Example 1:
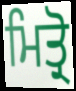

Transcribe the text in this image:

ਮਿਤ੍ਰੋ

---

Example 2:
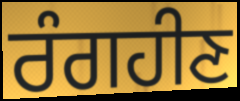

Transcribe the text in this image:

ਰੰਗਹੀਣ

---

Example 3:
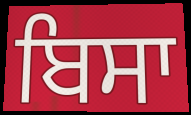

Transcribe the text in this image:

ਬਿਸਾ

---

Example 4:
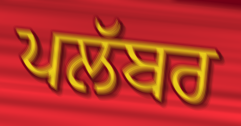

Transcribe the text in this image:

ਪਲੱਬਰ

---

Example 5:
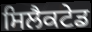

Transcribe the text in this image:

ਸਿਲੈਕਟੇਡ